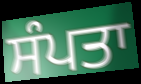
ਸੰਪਤਾ